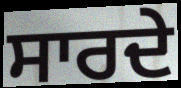
ਸਾਰਦੇ